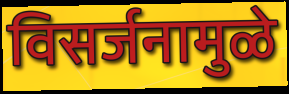
विसर्जनामुळे